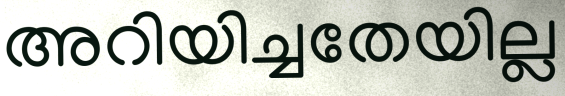
അറിയിച്ചതേയില്ല